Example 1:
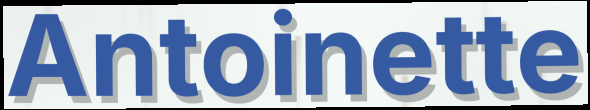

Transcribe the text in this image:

Antoinette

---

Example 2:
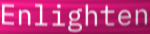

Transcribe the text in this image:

Enlighten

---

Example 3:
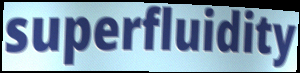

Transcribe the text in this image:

superfluidity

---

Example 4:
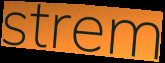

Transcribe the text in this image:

strem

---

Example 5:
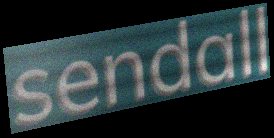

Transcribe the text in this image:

sendall